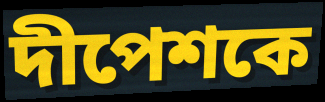
দীপেশকে